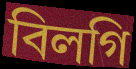
বিলগি